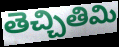
తెచ్చితిమి